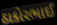
ઠાકોરભાઈ